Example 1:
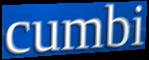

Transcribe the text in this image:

cumbi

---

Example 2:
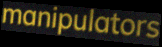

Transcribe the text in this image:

manipulators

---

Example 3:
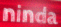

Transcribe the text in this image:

ninda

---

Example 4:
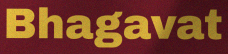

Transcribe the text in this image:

Bhagavat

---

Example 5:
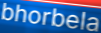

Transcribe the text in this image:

bhorbela